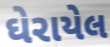
ઘેરાયેલ